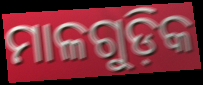
ମାଳଗୁଡ଼ିକ